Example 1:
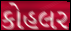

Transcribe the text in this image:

કોહલર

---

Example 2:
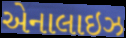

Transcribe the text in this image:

એનાલાઇઝ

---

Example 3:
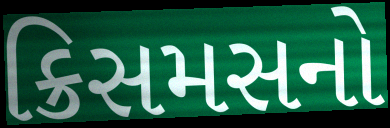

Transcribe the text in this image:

ક્રિસમસનો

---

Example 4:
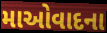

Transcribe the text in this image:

માઓવાદના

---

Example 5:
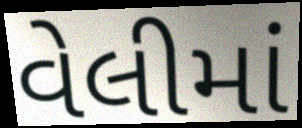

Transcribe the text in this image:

વેલીમાં